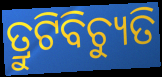
ତ୍ରୁଟିବିଚ୍ୟୁତି